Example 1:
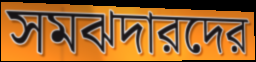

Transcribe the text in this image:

সমঝদারদের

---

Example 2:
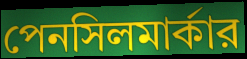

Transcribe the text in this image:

পেনসিলমার্কার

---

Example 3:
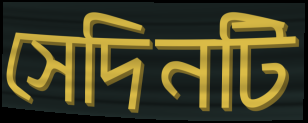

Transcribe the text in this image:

সেদিনটি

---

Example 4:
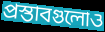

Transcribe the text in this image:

প্রস্তাবগুলোও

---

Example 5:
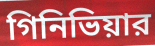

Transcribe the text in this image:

গিনিভিয়ার